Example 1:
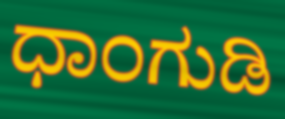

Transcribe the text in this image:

ಧಾಂಗುಡಿ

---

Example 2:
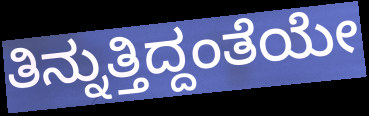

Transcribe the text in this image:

ತಿನ್ನುತ್ತಿದ್ದಂತೆಯೇ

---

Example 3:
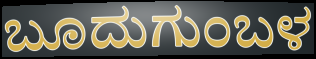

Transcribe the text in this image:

ಬೂದುಗುಂಬಳ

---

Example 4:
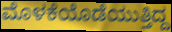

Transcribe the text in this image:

ಮೊಳಕೆಯೊಡೆಯುತ್ತಿದ್ದ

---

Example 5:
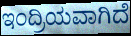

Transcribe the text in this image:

ಇಂದ್ರಿಯವಾಗಿದೆ